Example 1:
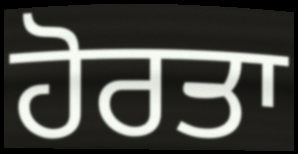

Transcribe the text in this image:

ਹੋਰਤਾ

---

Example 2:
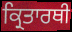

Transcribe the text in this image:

ਕ੍ਰਿਤਾਰਥੀ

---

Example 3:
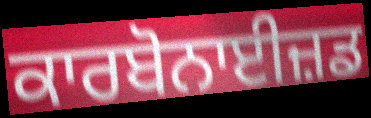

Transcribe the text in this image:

ਕਾਰਬੋਨਾਈਜ਼ਡ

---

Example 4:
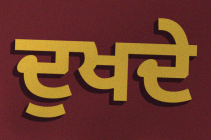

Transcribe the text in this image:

ਦੁਖਦੇ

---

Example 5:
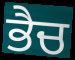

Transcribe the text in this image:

ਭੈਚ